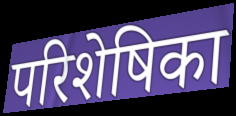
परिशेषिका